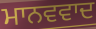
ਮਾਨਵਵਾਦ